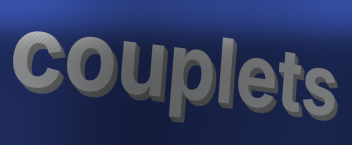
couplets